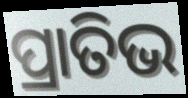
ପ୍ରାତିଭ